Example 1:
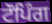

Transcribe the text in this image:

ਟੌਪਿੰਗ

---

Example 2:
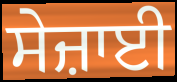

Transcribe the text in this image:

ਸੇਜ਼ਾਈ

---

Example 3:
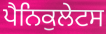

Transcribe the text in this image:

ਪੈਨਿਕੁਲੇਟਸ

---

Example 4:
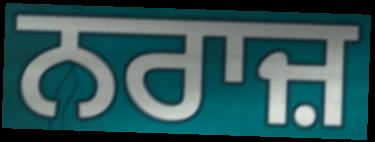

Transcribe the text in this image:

ਨਰਾਜ਼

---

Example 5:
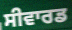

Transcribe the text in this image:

ਸੀਵਾਰਡ